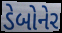
ડેબોનેર